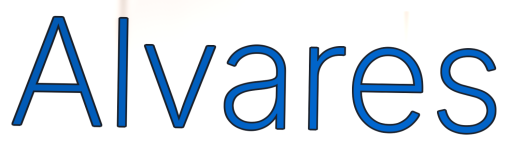
Alvares